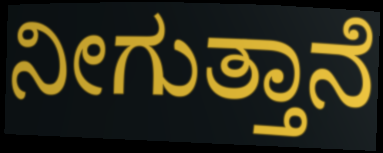
ನೀಗುತ್ತಾನೆ